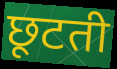
छूटती